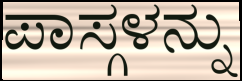
ಪಾಸ್ಗಳನ್ನು